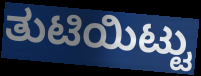
ತುಟಿಯಿಟ್ಟು